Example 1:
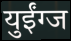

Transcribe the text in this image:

युईंग्ज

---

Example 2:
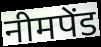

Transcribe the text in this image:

नीमपेंड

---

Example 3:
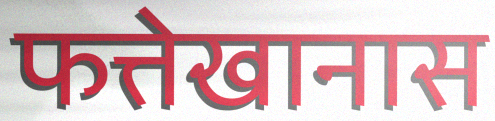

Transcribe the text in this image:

फत्तेखानास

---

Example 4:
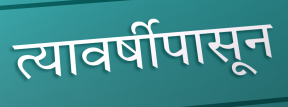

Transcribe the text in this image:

त्यावर्षीपासून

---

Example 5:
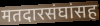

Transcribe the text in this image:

मतदारसंघांसह